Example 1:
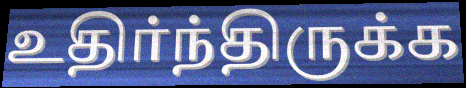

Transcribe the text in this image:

உதிர்ந்திருக்க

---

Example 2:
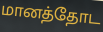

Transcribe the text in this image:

மானத்தோட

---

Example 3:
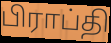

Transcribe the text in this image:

பிராப்தி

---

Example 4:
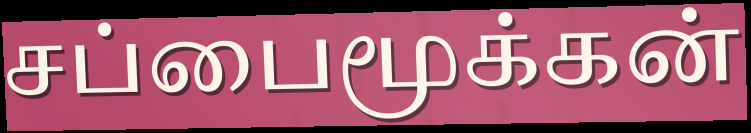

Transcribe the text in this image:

சப்பைமூக்கன்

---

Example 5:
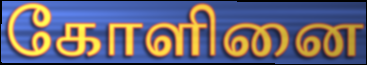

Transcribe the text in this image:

கோளினை